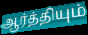
ஆர்த்தியும்